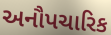
અનૌપચારિક